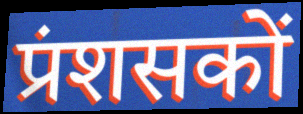
प्रंशसकों